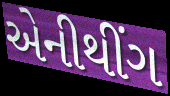
એનીથીંગ